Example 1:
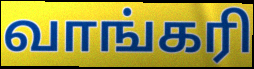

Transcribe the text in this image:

வாங்கரி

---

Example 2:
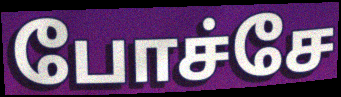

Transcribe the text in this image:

போச்சே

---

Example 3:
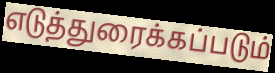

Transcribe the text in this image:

எடுத்துரைக்கப்படும்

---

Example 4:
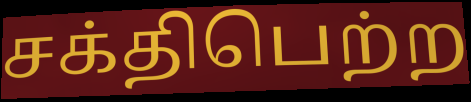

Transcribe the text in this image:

சக்திபெற்ற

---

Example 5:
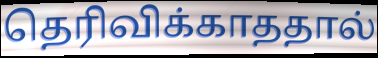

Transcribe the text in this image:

தெரிவிக்காததால்